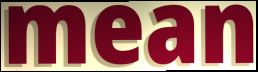
mean